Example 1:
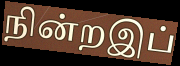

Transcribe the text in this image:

நின்றஇப்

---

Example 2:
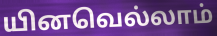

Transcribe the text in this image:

யினவெல்லாம்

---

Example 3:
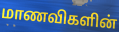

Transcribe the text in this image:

மாணவிகளின்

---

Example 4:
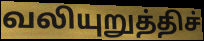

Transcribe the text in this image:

வலியுறுத்திச்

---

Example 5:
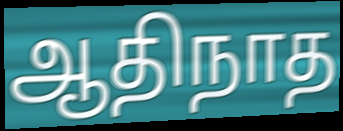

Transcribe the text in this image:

ஆதிநாத